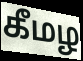
கீமழ